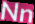
Nn